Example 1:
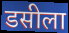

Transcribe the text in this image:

डसीला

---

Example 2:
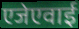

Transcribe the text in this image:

एजेएवाई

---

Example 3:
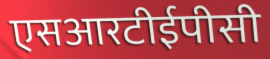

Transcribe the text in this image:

एसआरटीईपीसी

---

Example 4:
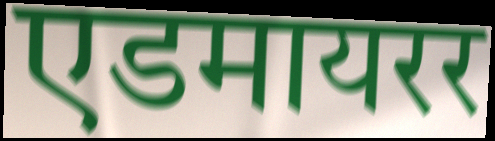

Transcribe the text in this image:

एडमायरर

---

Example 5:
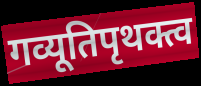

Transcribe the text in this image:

गव्यूतिपृथक्त्व